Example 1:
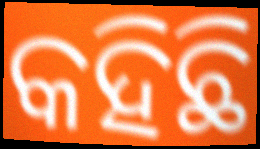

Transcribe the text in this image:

କହିଛି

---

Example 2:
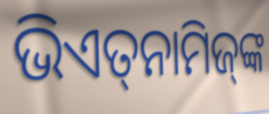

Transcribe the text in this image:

ଭିଏତ୍‌ନାମିଜ୍‌ଙ୍କ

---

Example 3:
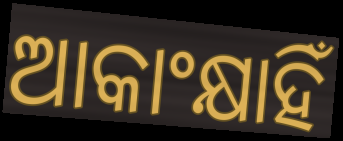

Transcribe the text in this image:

ଆକାଂକ୍ଷାହିଁ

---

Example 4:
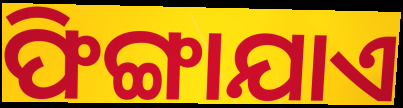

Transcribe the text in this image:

ଫିଙ୍ଗାଯାଏ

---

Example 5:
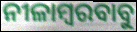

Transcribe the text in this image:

ନୀଳାମ୍ବରବାବୁ